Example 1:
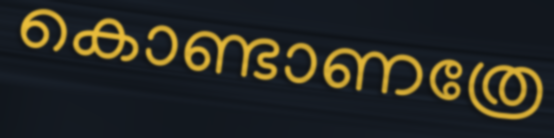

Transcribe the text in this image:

കൊണ്ടാണത്രേ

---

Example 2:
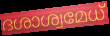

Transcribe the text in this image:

ദശാശ്വമേധ്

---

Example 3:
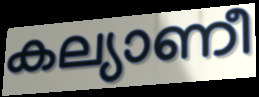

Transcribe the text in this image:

കല്യാണീ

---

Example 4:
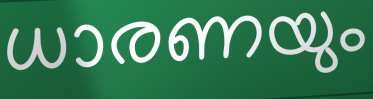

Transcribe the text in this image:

ധാരണയും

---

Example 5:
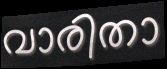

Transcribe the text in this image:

വാരിതാ